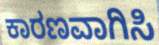
ಕಾರಣವಾಗಿಸಿ